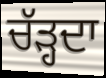
ਚੱੜ੍ਹਦਾ